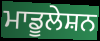
ਮਾਡੂਲੇਸ਼ਨ